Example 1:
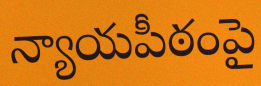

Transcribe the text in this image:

న్యాయపీఠంపై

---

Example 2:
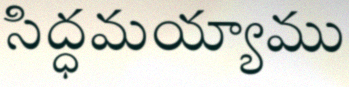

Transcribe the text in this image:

సిద్ధమయ్యాము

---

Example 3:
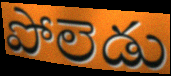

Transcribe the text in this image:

పోలెడు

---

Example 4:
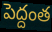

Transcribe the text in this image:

పెద్దంత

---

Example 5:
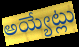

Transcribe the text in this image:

అయ్యేట్లు